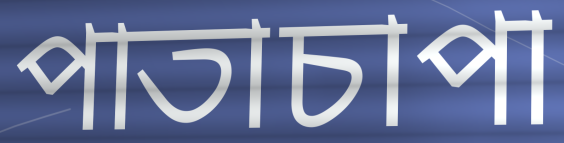
পাতাচাপা